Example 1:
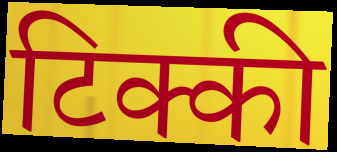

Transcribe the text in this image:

टिक्‍की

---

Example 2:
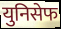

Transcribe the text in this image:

युनिसेफ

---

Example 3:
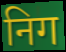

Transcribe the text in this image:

निग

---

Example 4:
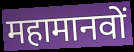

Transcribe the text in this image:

महामानवों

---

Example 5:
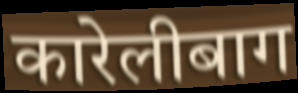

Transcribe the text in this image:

कारेलीबाग